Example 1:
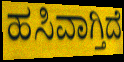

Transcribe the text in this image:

ಹಸಿವಾಗ್ತಿದೆ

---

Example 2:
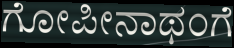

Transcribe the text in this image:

ಗೋಪೀನಾಥಂಗೆ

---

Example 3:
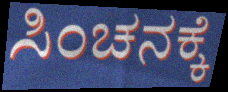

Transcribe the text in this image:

ಸಿಂಚನಕ್ಕೆ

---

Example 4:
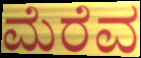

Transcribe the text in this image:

ಮೆರೆವ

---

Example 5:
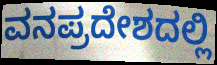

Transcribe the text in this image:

ವನಪ್ರದೇಶದಲ್ಲಿ